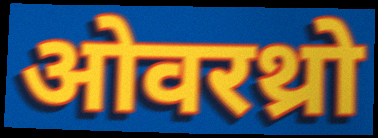
ओवरथ्रो